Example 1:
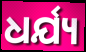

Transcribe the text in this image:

ଧର୍ଯ୍ୟ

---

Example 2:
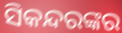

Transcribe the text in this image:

ସିକନ୍ଦରଙ୍କର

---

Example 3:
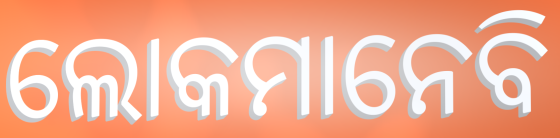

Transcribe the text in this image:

ଲୋକମାନେବି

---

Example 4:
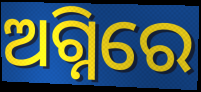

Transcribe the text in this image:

ଅଗ୍ନିରେ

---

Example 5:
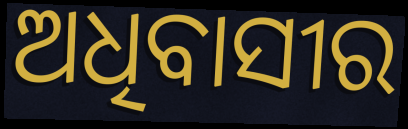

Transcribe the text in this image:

ଅଧିବାସୀର